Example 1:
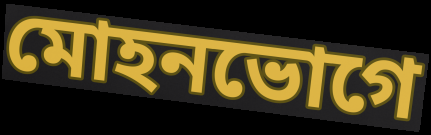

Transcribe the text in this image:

মোহনভোগে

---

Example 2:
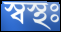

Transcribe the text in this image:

স্বস্থঃ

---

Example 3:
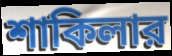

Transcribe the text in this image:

শাকিলার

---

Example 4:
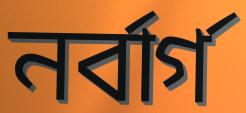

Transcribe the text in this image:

নর্বার্গ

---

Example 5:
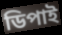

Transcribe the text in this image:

ডিপাই